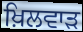
ਖ਼ਿਲਵਾੜ